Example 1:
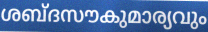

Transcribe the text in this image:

ശബ്ദസൗകുമാര്യവും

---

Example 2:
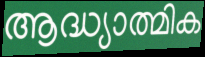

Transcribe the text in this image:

ആദ്ധ്യാത്മിക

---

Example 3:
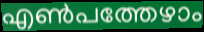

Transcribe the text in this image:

എൺപത്തേഴാം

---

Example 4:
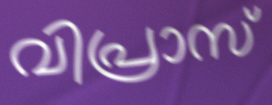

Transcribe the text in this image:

വിപ്രാസ്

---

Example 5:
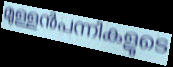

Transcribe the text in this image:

മുള്ളൻപന്നികളുടെ